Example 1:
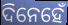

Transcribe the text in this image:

ଦିନେହେଁ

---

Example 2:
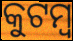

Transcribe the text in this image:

କୁଟମ୍ୱ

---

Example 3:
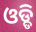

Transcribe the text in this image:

ଓଡ୍ଡି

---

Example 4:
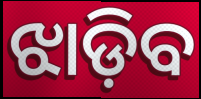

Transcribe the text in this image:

ଝାଡ଼ିବ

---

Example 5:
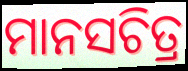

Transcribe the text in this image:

ମାନସଚିତ୍ର